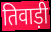
तिवाड़ी